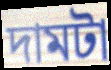
দামটা